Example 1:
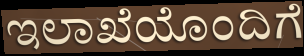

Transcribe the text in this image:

ಇಲಾಖೆಯೊಂದಿಗೆ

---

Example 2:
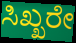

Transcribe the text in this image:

ಸಿಖ್ಖರೇ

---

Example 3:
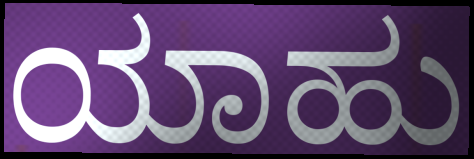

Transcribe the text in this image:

ಯಾಹು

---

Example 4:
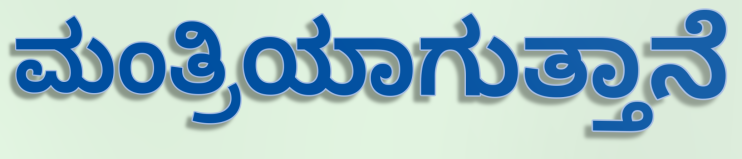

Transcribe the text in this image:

ಮಂತ್ರಿಯಾಗುತ್ತಾನೆ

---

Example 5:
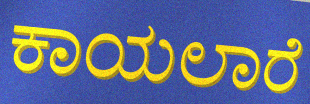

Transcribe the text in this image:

ಕಾಯಲಾರೆ